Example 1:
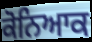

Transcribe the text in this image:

ਕੋਨਿਆਕ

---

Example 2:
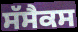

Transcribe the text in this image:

ਸੱਸੈਕਸ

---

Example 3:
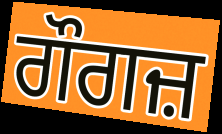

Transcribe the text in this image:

ਗੌਗਜ਼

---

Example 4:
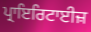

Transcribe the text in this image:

ਪ੍ਰਾਇਰਿਟਾਈਜ਼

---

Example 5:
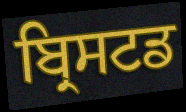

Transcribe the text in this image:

ਬ੍ਰਿਸਟਡ